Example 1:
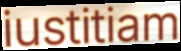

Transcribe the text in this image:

iustitiam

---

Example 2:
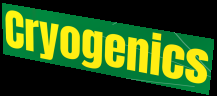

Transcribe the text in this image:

Cryogenics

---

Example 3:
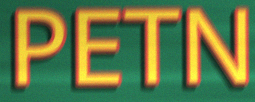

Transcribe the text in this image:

PETN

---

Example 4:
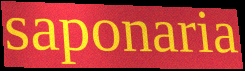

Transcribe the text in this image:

saponaria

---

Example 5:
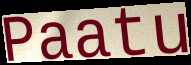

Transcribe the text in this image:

Paatu